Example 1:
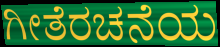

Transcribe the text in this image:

ಗೀತೆರಚನೆಯ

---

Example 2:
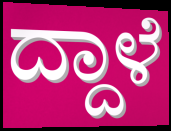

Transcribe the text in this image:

ದ್ದಾಳೆ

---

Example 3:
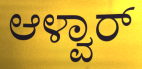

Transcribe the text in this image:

ಆಳ್ವಾರ್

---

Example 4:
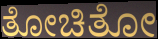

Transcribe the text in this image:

ತೋಚಿತೋ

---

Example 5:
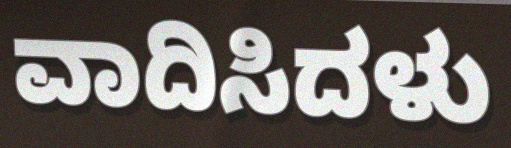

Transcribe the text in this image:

ವಾದಿಸಿದಳು